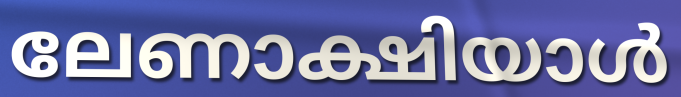
ലേണാക്ഷിയാൾ